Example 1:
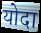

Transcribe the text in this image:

योदा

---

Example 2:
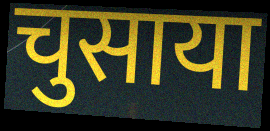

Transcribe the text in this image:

चुसाया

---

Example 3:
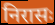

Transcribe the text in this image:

निरासः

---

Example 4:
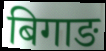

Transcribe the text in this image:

बिगाङ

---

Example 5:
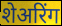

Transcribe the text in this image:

शेअरिंग